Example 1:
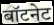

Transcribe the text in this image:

बॉटनेट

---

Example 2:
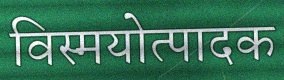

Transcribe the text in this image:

विस्मयोत्पादक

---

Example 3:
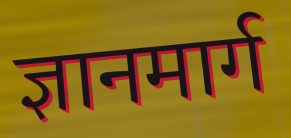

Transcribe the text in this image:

ज्ञानमार्ग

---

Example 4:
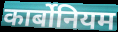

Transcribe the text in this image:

कार्बोनियम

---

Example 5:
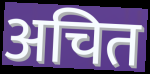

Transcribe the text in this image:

अचित